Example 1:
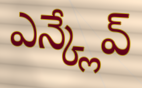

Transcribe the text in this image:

ఎన్క్లేవ్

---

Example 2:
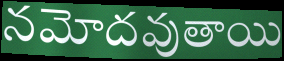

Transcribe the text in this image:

నమోదవుతాయి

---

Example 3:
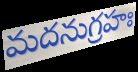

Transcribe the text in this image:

మదనుగ్రహః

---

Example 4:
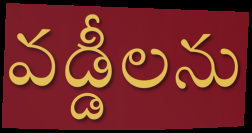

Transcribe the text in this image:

వడ్డీలను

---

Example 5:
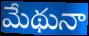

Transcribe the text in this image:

మేథునా